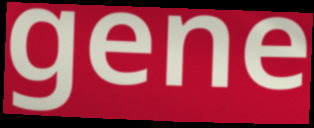
gene